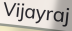
Vijayraj